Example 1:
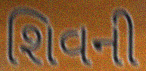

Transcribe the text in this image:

શિવની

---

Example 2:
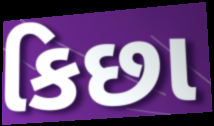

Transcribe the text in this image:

કિછા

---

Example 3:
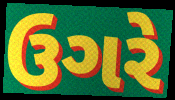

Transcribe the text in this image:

ઉગરે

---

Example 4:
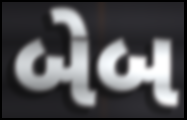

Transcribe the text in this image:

બેબ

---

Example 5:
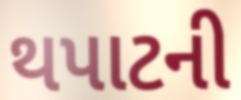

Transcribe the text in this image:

થપાટની